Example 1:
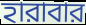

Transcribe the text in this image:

হারাবার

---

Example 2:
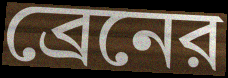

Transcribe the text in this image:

ব্রেনের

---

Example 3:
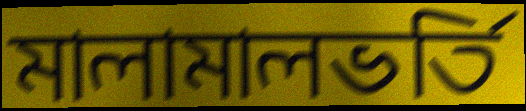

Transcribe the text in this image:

মালামালভর্তি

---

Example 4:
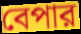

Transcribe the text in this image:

বেপার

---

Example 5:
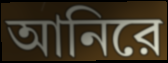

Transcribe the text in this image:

আনিরে